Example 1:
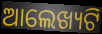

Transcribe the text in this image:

ଆଲେଖ୍ୟଟି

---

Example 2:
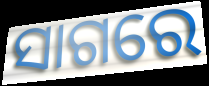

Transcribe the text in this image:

ସାଗରେ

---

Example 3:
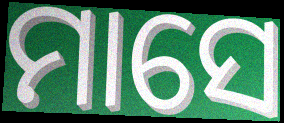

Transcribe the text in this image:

ମାସେ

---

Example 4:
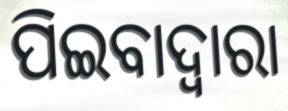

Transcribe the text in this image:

ପିଇବାଦ୍ଵାରା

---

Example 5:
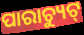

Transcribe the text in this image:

ପାରାଚ୍ୟୁଟ୍